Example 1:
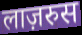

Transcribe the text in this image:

लाज़रुस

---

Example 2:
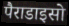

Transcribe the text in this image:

पैराडाइसो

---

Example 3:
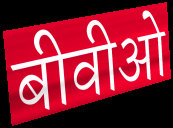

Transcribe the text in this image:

बीवीओ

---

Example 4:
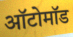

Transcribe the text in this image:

ऑटोमॉड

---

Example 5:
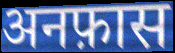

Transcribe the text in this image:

अनफ़ास